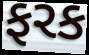
ફરક